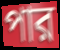
পার